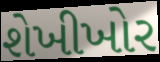
શેખીખોર